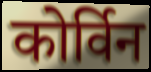
कोर्विन